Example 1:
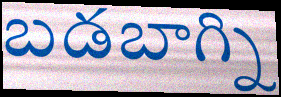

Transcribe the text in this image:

బడబాగ్ని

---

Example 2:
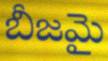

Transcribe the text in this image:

బీజమై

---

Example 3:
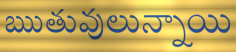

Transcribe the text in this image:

ఋతువులున్నాయి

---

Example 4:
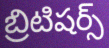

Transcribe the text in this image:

బ్రిటిషర్స్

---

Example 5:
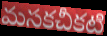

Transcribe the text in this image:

మసకచీకటి